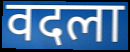
वदला